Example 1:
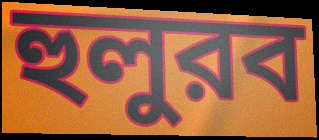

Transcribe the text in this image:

হুলুরব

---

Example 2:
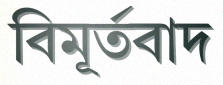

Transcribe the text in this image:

বিমূর্তবাদ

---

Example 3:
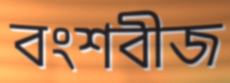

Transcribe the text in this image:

বংশবীজ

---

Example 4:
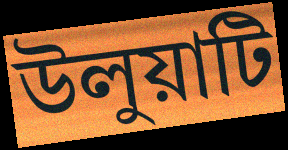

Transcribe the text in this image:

উলুয়াটি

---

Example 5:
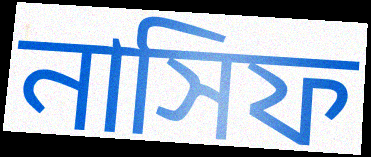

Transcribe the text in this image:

নাসিফ